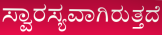
ಸ್ವಾರಸ್ಯವಾಗಿರುತ್ತದೆ